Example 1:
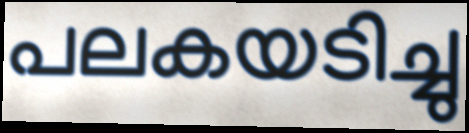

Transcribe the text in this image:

പലകയടിച്ചു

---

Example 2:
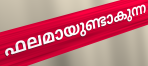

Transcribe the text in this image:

ഫലമായുണ്ടാകുന്ന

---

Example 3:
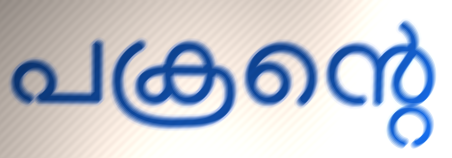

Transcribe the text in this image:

പക്രന്റെ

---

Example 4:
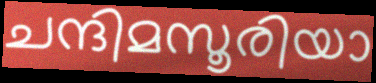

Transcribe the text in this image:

ചന്ദിമസൂരിയാ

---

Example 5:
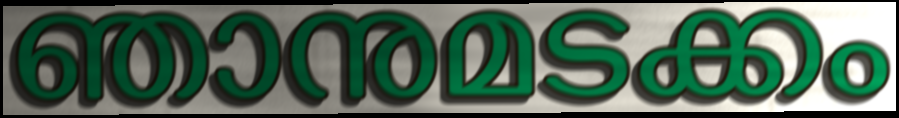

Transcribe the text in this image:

ഞാനുമടക്കം